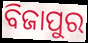
ବିଜାପୁର